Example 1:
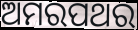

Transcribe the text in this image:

ଅମରପଥର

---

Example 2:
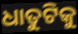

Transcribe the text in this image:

ଧାତୁଟିକୁ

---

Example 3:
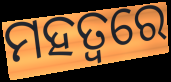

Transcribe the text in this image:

ମହତ୍ୱରେ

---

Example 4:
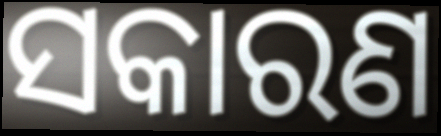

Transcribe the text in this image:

ସକାରଣ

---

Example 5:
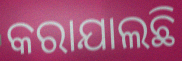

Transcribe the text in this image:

କରାଯାଲଛି